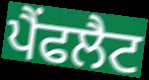
ਪੈਂਫਲੈਟ